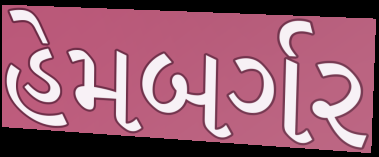
હેમબર્ગર